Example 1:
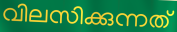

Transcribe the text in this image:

വിലസിക്കുന്നത്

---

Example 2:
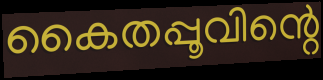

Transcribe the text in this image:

കൈതപ്പൂവിന്റെ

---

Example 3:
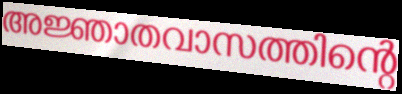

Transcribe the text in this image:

അജ്ഞാതവാസത്തിന്റെ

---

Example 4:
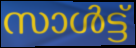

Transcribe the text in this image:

സാൾട്ട്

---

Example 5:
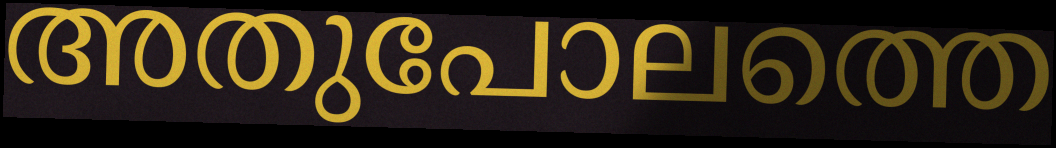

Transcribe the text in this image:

അതുപോലത്തെ